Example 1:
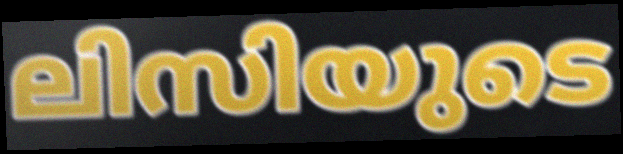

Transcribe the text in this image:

ലിസിയുടെ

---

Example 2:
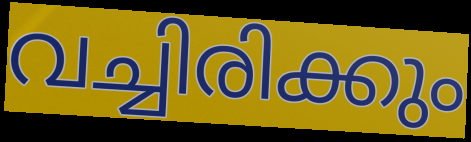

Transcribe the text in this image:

വച്ചിരിക്കും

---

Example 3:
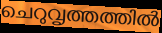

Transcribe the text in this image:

ചെറുവൃത്തത്തിൽ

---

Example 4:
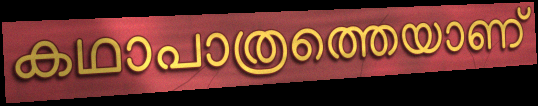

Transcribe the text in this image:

കഥാപാത്രത്തെയാണ്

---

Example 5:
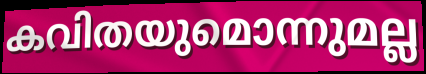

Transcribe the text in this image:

കവിതയുമൊന്നുമല്ല